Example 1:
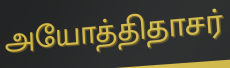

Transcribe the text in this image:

அயோத்திதாசர்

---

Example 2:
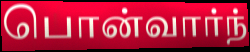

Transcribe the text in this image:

பொன்வார்ந்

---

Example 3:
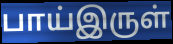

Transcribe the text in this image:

பாய்இருள்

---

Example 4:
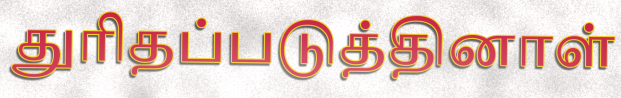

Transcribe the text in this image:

துரிதப்படுத்தினாள்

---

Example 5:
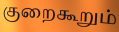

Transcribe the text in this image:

குறைகூறும்